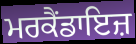
ਮਰਕੈਂਡਾਇਜ਼